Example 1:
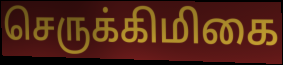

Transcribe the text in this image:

செருக்கிமிகை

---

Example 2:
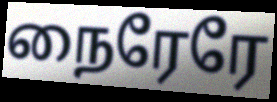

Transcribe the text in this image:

நைரேரே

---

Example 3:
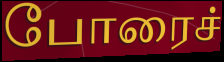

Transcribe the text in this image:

போரைச்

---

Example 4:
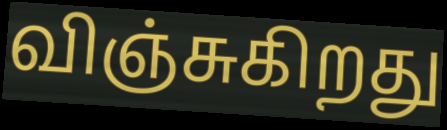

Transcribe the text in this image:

விஞ்சுகிறது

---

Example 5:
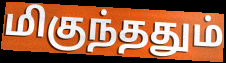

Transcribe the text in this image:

மிகுந்ததும்